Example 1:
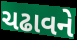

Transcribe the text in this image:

ચઢાવને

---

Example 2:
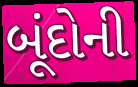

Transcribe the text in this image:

બૂંદોની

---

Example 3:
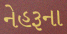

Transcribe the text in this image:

નેહરૂના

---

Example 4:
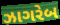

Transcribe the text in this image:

ઝાગરેબ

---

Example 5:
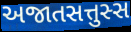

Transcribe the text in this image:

અજાતસત્તુસ્સ